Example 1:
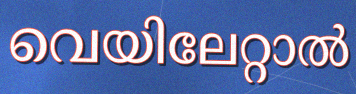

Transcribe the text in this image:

വെയിലേറ്റാൽ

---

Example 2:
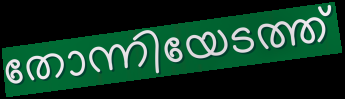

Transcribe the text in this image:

തോന്നിയേടത്ത്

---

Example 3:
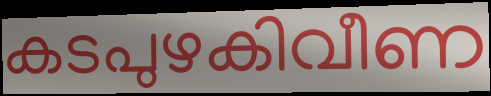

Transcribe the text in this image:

കടപുഴകിവീണ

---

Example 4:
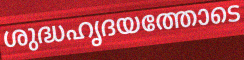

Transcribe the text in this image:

ശുദ്ധഹൃദയത്തോടെ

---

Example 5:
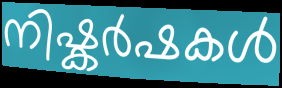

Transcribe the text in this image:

നിഷ്കർഷകൾ